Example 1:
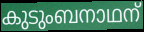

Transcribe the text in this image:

കുടുംബനാഥന്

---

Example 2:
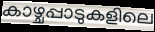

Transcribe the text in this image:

കാഴ്ചപ്പാടുകളിലെ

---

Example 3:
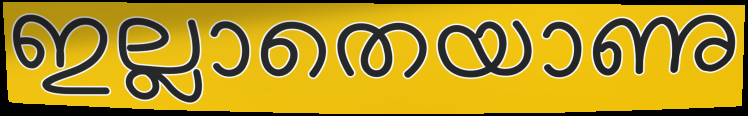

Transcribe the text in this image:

ഇല്ലാതെയാണു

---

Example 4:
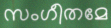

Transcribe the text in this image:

സംഗീതമേ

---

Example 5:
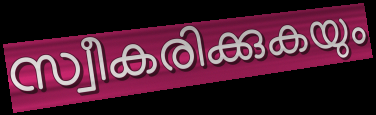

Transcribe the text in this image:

സ്വീകരിക്കുകയും